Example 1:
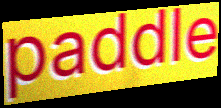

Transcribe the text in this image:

paddle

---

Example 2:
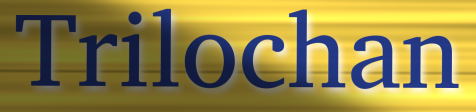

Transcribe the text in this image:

Trilochan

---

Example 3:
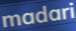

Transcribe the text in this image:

madari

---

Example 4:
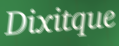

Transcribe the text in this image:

Dixitque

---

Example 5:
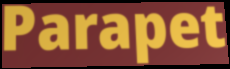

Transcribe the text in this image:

Parapet